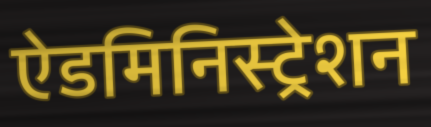
ऐडमिनिस्ट्रेशन